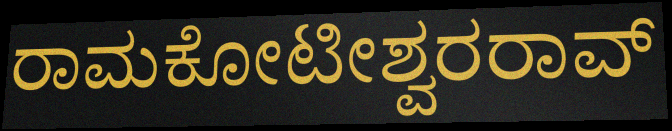
ರಾಮಕೋಟೀಶ್ವರರಾವ್